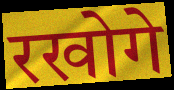
रखोगे